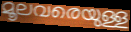
മൂലവരെയുള്ള